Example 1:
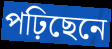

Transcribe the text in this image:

পঢ়িছেনে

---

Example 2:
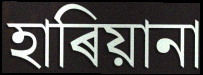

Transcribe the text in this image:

হাৰিয়ানা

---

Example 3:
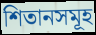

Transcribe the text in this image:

শিতানসমূহ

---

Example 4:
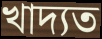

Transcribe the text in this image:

খাদ্যত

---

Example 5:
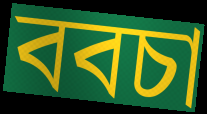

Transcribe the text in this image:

ববচা